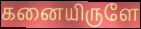
கனையிருளே